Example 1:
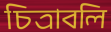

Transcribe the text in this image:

চিত্রাবলি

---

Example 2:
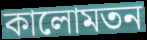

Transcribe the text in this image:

কালোমতন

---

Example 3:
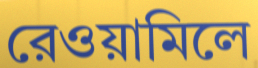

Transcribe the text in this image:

রেওয়ামিলে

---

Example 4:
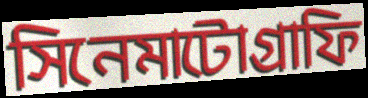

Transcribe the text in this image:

সিনেমাটোগ্রাফি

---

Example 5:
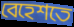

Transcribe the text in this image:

বেহেশতে